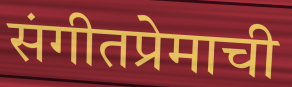
संगीतप्रेमाची